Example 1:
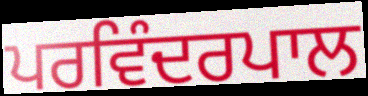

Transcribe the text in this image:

ਪਰਵਿੰਦਰਪਾਲ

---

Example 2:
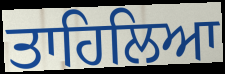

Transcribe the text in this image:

ਤਾਹਿਲਿਆ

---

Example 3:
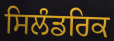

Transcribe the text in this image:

ਸਿਲੰਡਰਿਕ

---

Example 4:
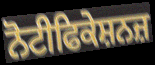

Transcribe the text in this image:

ਨੋਟੀਫਿਕੇਸ਼ਨਜ਼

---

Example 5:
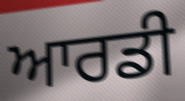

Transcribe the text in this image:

ਆਰਡੀ